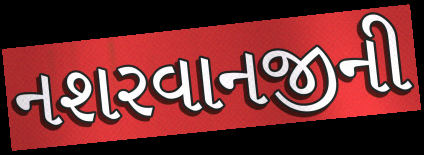
નશરવાનજીની